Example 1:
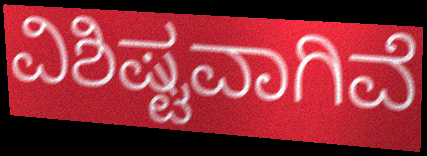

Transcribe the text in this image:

ವಿಶಿಷ್ಟವಾಗಿವೆ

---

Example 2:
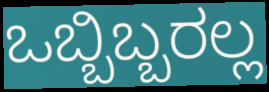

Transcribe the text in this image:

ಒಬ್ಬಿಬ್ಬರಲ್ಲ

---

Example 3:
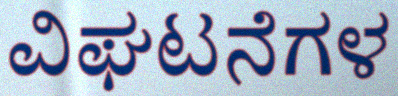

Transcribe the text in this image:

ವಿಘಟನೆಗಳ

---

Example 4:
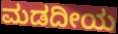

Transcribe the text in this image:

ಮಡದೀಯ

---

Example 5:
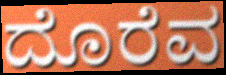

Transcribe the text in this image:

ದೊರೆವ